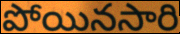
పోయినసారి